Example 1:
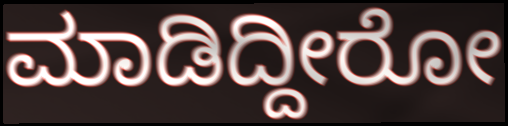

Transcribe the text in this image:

ಮಾಡಿದ್ದೀರೋ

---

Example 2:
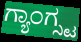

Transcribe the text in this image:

ಗ್ಯಾಂಗ್ಸ್ಟ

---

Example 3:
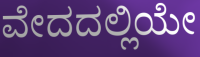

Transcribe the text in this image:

ವೇದದಲ್ಲಿಯೇ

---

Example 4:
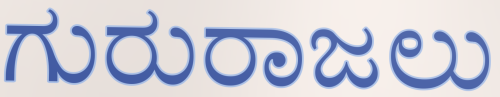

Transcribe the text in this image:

ಗುರುರಾಜಲು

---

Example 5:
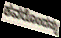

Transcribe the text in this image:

ಕವರೊಂದನ್ನು